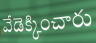
వేడెక్కించారు